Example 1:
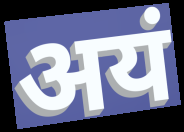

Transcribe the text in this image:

अयं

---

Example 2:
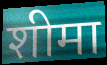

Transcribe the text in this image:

शीमा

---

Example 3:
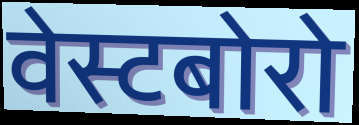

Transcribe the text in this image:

वेस्टबोरो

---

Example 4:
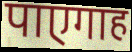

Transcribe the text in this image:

पाएगाह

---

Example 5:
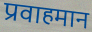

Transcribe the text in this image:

प्रवाहमान